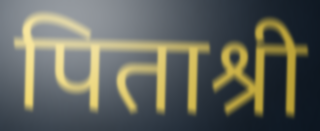
पिताश्री